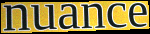
nuance